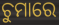
ଚୁମାରେ